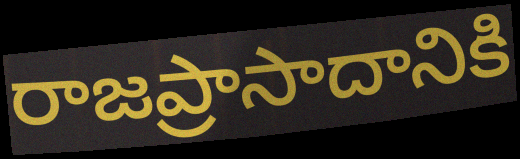
రాజప్రాసాదానికి